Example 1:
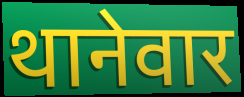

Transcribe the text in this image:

थानेवार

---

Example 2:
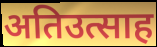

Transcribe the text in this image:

अतिउत्साह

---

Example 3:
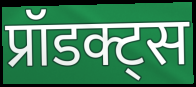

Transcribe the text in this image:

प्रॉडक्ट्स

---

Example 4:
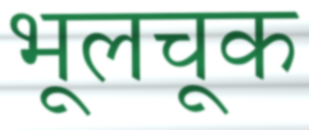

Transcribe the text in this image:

भूलचूक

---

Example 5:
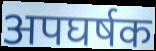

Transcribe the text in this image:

अपघर्षक